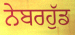
ਨੇਬਰਹੁੱਡ